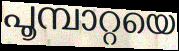
പൂമ്പാറ്റയെ